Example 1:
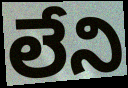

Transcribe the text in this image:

లేని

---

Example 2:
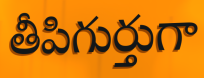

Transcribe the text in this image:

తీపిగుర్తుగా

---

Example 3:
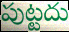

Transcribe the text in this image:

పుట్టదు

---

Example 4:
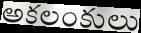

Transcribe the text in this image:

అకలంకులు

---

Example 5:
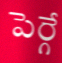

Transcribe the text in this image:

పెర్గే